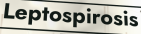
Leptospirosis